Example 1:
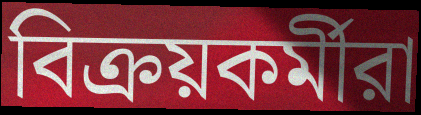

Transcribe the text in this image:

বিক্রয়কর্মীরা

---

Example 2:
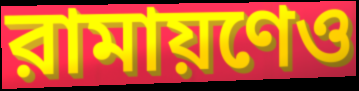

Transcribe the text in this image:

রামায়ণেও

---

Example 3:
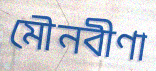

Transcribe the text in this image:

মৌনবীণা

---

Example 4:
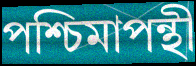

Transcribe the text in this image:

পশ্চিমাপন্থী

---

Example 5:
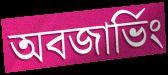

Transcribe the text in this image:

অবজার্ভিং